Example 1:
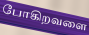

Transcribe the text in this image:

போகிறவளை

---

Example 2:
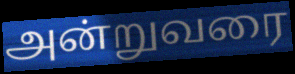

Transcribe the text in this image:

அன்றுவரை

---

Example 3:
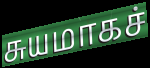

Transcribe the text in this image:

சுயமாகச்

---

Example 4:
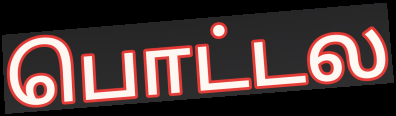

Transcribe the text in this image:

பொட்டல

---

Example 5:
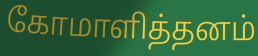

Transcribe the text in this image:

கோமாளித்தனம்